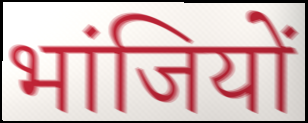
भांजियों